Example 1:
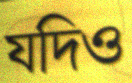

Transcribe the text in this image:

যদিও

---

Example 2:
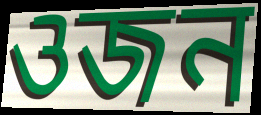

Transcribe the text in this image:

ওজন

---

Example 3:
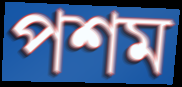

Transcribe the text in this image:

পশম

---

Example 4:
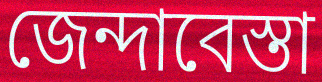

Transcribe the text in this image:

জেন্দাবেস্তা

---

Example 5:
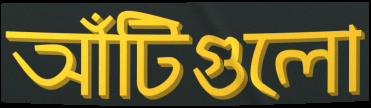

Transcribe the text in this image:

আঁটিগুলো